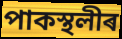
পাকস্থলীৰ